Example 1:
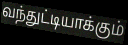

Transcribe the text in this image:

வந்துட்டியாக்கும்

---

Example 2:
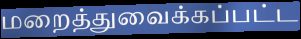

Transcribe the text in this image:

மறைத்துவைக்கப்பட்ட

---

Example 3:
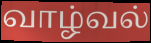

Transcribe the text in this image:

வாழ்வல்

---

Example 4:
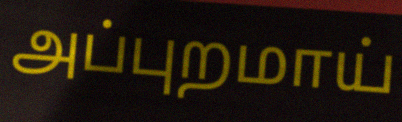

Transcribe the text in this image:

அப்புறமாய்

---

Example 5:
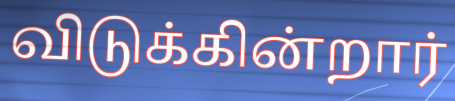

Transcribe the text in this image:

விடுக்கின்றார்